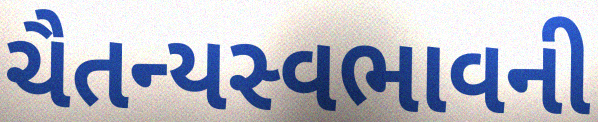
ચૈતન્યસ્વભાવની